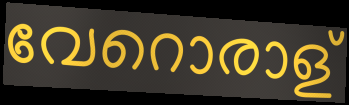
വേറൊരാള്